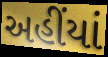
અહીંયાં